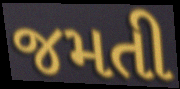
જમતી